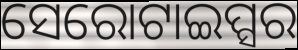
ସେରୋଟାଇପ୍ସର